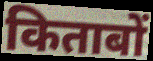
किताबों